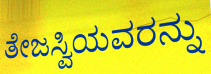
ತೇಜಸ್ವಿಯವರನ್ನು